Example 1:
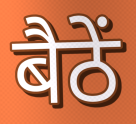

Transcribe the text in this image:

बैठें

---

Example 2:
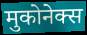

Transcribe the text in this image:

मुकोनेक्स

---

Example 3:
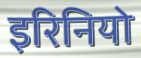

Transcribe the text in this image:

इरिनियो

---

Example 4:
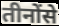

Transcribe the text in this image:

तीनोंसे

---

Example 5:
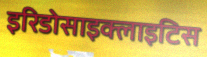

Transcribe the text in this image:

इरिडोसाइक्लाइटिस